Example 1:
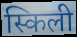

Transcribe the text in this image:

स्किली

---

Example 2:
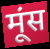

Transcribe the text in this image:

मूंस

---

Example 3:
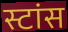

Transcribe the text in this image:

स्टांस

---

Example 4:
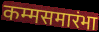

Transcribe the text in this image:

कम्मसमारंभा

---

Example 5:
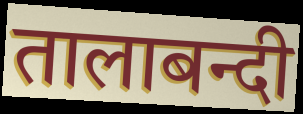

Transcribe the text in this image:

तालाबन्दी